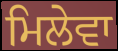
ਮਿਲੇਵਾ